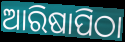
ଆରିଷାପିଠା